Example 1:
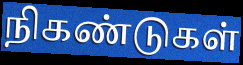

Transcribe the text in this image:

நிகண்டுகள்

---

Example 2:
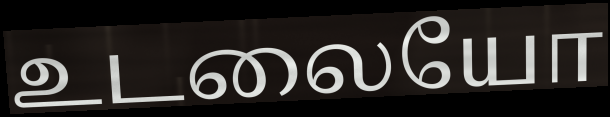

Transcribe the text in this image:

உடலையோ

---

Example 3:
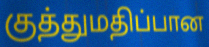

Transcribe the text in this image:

குத்துமதிப்பான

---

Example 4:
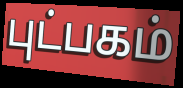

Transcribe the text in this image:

புட்பகம்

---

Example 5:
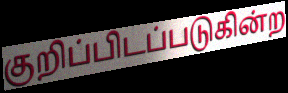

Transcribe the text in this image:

குறிப்பிடப்படுகின்ற